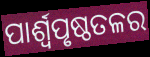
ପାର୍ଶ୍ଵପୃଷ୍ଠତଳର